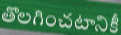
తొలగించటానికీ